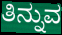
ತಿನ್ನುವ